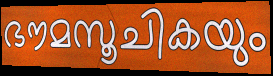
ഭൗമസൂചികയും